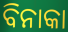
ବିନାକା